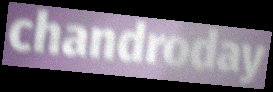
chandroday